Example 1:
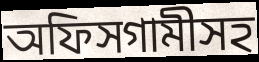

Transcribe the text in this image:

অফিসগামীসহ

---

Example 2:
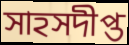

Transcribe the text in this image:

সাহসদীপ্ত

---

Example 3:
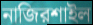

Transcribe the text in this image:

নাজিরশাইল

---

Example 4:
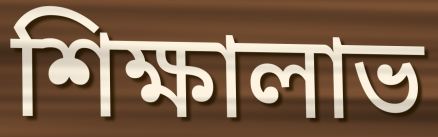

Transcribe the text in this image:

শিক্ষালাভ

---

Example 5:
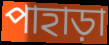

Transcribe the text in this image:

পাহাড়া